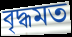
বৃদ্ধমত